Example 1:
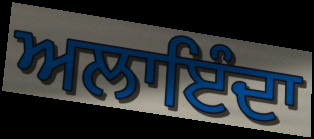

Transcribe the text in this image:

ਅਲਾਇੰਦਾ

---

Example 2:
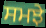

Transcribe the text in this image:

ਸਮਝੇ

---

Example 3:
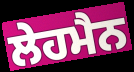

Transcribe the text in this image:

ਲੇਹਮੈਨ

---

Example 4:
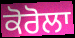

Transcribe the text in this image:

ਕੋਰੋਲਾ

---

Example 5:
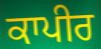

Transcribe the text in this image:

ਕਾਪੀਰ